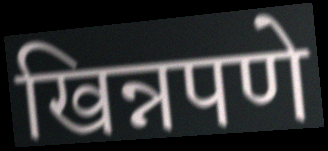
खिन्नपणे